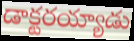
డాక్టరయ్యాడు